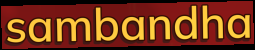
sambandha